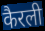
कैरली